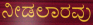
ನೀಡಲಾರವು